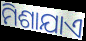
ମିଶାଯାଏ